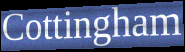
Cottingham